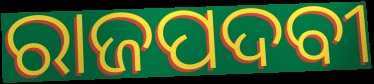
ରାଜପଦବୀ